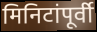
मिनिटांपूर्वी